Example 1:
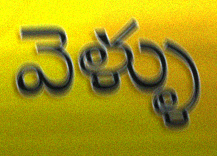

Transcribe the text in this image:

వెళ్ళు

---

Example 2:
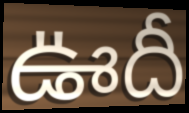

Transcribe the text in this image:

ఊదీ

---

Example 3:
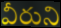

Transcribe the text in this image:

వీరుని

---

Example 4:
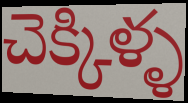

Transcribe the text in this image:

చెక్కిళ్ళ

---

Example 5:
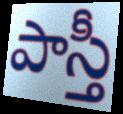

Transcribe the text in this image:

పాస్తీ